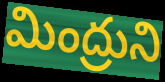
మింద్రుని